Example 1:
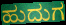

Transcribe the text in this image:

ಹುದುಗ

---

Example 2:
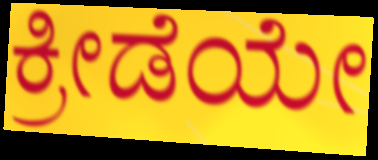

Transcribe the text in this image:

ಕ್ರೀಡೆಯೇ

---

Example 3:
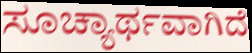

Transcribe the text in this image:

ಸೂಚ್ಯಾರ್ಥವಾಗಿದೆ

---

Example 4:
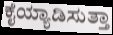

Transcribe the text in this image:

ಕೈಯ್ಯಾಡಿಸುತ್ತಾ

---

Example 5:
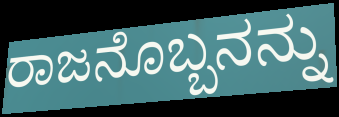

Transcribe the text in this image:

ರಾಜನೊಬ್ಬನನ್ನು